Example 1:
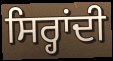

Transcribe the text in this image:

ਸਿਰ੍ਹਾਂਦੀ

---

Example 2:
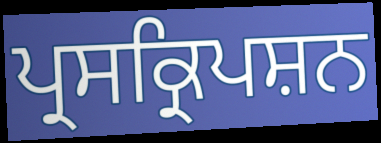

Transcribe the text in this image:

ਪ੍ਰਸਕ੍ਰਿਪਸ਼ਨ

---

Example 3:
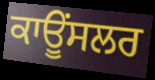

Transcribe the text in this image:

ਕਾਊਂਸਲਰ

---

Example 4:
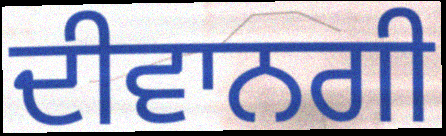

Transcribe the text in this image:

ਦੀਵਾਨਗੀ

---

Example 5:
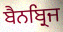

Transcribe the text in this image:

ਬੈਨਬ੍ਰਿਜ